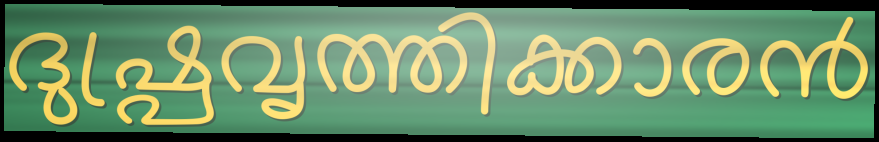
ദുഷ്പ്രവൃത്തിക്കാരൻ